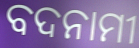
ବଦନାମୀ